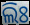
ଲିଃ